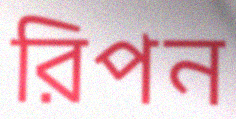
রিপন